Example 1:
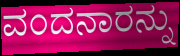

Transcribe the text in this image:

ವಂದನಾರನ್ನು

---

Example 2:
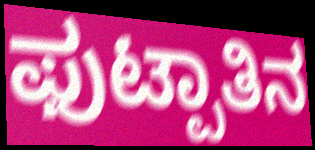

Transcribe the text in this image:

ಫುಟ್ಪಾತಿನ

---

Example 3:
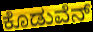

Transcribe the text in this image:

ಕೊಡುವೆನ್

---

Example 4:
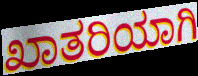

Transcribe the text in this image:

ಖಾತರಿಯಾಗಿ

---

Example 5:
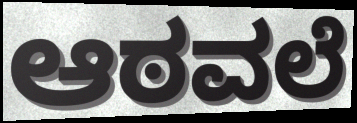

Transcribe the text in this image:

ಆಠವಲೆ